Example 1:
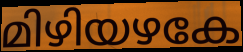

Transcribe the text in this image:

മിഴിയഴകേ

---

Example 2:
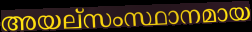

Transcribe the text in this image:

അയല്സംസ്ഥാനമായ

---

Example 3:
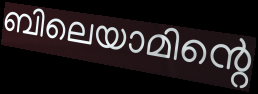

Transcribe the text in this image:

ബിലെയാമിന്റെ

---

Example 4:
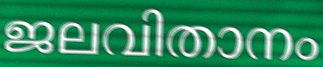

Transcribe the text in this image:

ജലവിതാനം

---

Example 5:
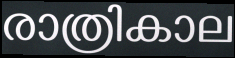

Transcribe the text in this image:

രാത്രികാല